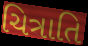
ચિત્રાતિ